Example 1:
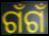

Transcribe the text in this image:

ଗଁଗଁ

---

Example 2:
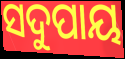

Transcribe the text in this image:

ସଦୁପାୟ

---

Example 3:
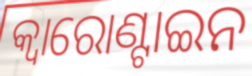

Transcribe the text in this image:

କ୍ୱାରୋଣ୍ଟାଇନ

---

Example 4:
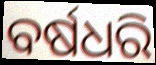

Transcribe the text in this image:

ବର୍ଷଧରି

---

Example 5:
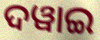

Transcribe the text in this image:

ଦୱାଇ